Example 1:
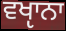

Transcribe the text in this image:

ਵਖੵਾਨਾ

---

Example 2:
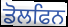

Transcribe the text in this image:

ਡੋਲਫਿਨ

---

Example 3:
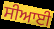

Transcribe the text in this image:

ਸੀਆਈ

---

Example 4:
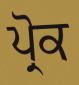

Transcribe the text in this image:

ਪ੍ਰੋਕ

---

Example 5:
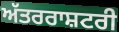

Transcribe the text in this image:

ਅੱਤਰਰਾਸ਼ਟਰੀ